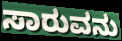
ಸಾರುವನು